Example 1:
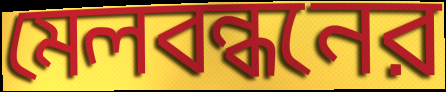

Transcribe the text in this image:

মেলবন্ধনের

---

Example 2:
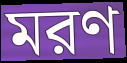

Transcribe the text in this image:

মরণ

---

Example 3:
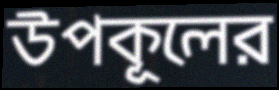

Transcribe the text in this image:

উপকূলের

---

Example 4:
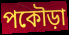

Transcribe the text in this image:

পকৌড়া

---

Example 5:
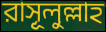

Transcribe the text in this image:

রাসূলুল্লাহ